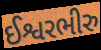
ઈશ્વરભીરુ